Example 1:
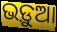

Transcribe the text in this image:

ଭଡ଼ୁଆ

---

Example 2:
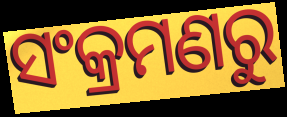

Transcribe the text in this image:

ସଂକ୍ରମଣରୁ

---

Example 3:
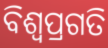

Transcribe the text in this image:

ବିଶ୍ବପ୍ରଗତି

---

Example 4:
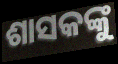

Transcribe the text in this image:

ଶାସକଙ୍କୁ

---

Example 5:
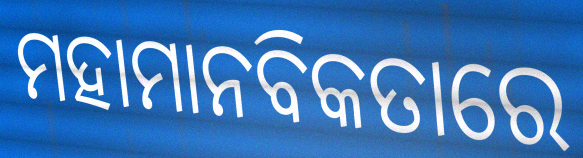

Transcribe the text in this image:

ମହାମାନବିକତାରେ